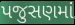
પજુસણમાં